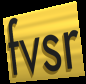
fvsr